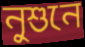
নুশুনে